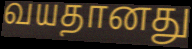
வயதானது